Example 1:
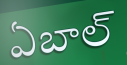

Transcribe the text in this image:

ఏబాల్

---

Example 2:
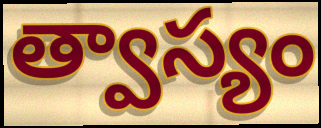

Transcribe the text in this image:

త్వాస్యం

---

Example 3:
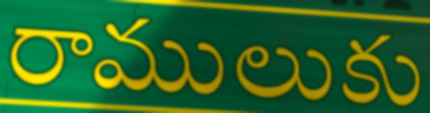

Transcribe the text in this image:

రాములుకు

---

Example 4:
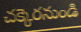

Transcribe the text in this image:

చక్కెరనుండి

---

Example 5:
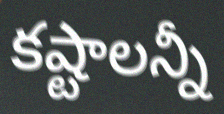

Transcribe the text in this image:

కష్టాలన్నీ